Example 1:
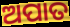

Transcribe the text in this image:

ଅପାତ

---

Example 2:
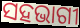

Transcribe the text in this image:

ସହଭାଗୀ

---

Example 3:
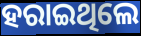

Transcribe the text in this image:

ହରାଇଥିଲେ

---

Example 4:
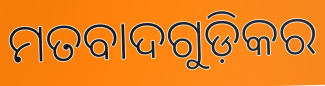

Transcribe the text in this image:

ମତବାଦଗୁଡ଼ିକର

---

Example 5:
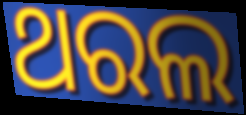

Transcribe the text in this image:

ଥରଲ